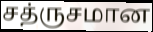
சத்ருசமான